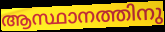
ആസ്ഥാനത്തിനു